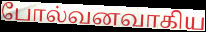
போல்வனவாகிய